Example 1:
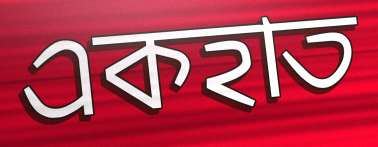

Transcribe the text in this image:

একহাত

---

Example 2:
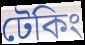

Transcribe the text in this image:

টেকিং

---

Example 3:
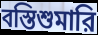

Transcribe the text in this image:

বস্তিশুমারি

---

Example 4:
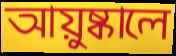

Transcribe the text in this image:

আয়ুষ্কালে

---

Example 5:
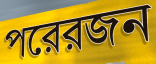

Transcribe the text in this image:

পরেরজন